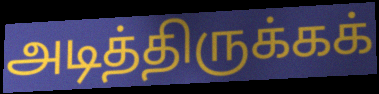
அடித்திருக்கக்